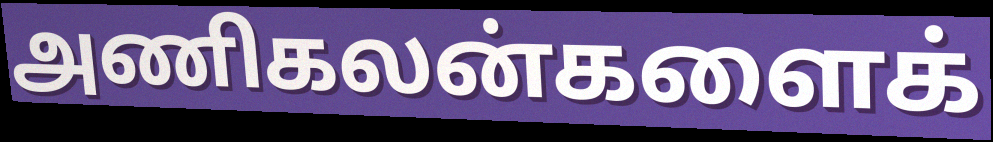
அணிகலன்களைக்